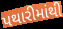
પથારીમાંથી